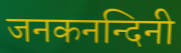
जनकनन्दिनी